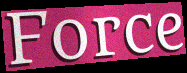
Force